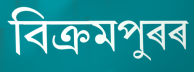
বিক্ৰমপুৰৰ